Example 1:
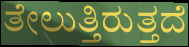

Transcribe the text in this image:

ತೇಲುತ್ತಿರುತ್ತದೆ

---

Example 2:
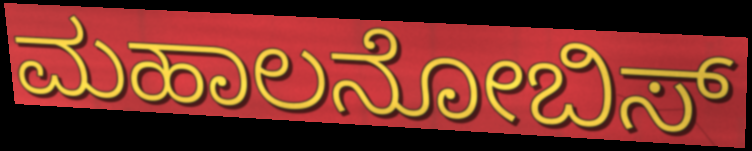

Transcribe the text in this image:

ಮಹಾಲನೋಬಿಸ್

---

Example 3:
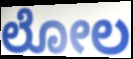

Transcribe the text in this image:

ಲೋಲ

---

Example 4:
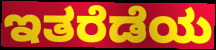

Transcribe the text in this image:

ಇತರೆಡೆಯ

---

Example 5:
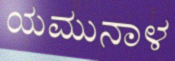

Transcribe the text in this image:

ಯಮುನಾಳ